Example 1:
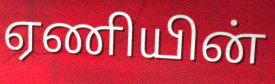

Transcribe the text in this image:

ஏணியின்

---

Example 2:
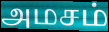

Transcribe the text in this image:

அமசம்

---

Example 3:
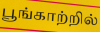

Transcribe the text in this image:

பூங்காற்றில்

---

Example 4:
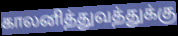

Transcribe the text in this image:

காலனித்துவத்துக்கு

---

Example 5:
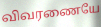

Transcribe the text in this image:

விவரணையே